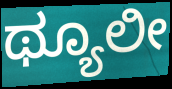
ಥ್ಯೂಲೀ